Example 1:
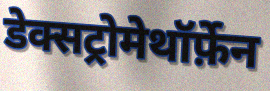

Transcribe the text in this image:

डेक्सट्रोमेथॉर्फ़ेन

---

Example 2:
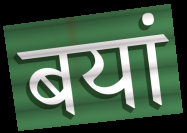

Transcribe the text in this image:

बयां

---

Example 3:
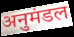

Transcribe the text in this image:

अनुमंडल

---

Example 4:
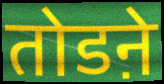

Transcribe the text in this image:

तोडऩे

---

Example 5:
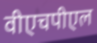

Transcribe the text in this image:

वीएचपीएल